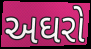
અઘરો